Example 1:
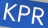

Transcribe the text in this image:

KPR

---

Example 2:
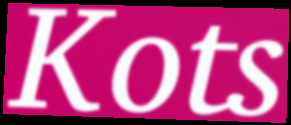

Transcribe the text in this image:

Kots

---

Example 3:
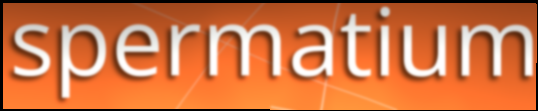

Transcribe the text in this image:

spermatium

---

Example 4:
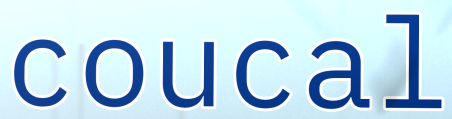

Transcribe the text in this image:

coucal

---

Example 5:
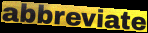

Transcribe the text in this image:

abbreviate